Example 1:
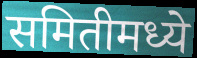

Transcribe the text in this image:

समितीमध्ये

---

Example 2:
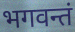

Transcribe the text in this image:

भगवन्तं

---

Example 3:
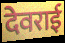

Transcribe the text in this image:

देवराई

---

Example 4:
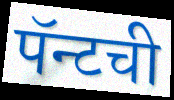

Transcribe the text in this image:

पॅन्टची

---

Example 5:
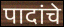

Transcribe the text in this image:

पादांचे